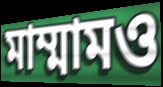
মাম্মামও